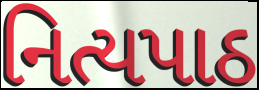
નિત્યપાઠ